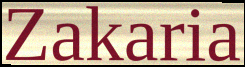
Zakaria